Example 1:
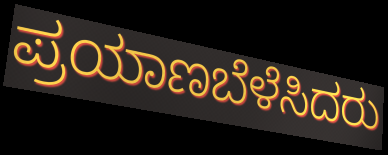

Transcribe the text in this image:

ಪ್ರಯಾಣಬೆಳೆಸಿದರು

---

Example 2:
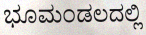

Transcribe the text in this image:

ಭೂಮಂಡಲದಲ್ಲಿ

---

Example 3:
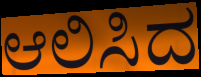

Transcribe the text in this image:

ಆಲಿಸಿದ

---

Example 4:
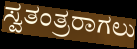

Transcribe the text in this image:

ಸ್ವತಂತ್ರರಾಗಲು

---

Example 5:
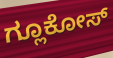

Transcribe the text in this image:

ಗ್ಲೂಕೋಸ್